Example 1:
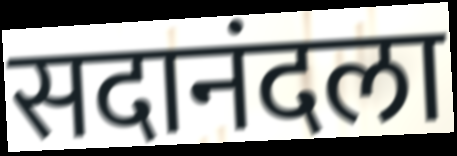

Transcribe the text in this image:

सदानंदला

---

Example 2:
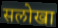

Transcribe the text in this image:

सलोखा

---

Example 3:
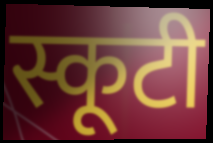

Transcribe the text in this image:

स्कूटी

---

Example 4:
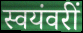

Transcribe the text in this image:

स्वयंवरीं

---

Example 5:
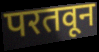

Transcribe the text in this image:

परतवून